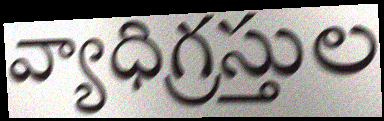
వ్యాధిగ్రస్తుల